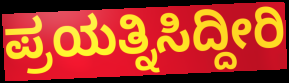
ಪ್ರಯತ್ನಿಸಿದ್ದೀರಿ